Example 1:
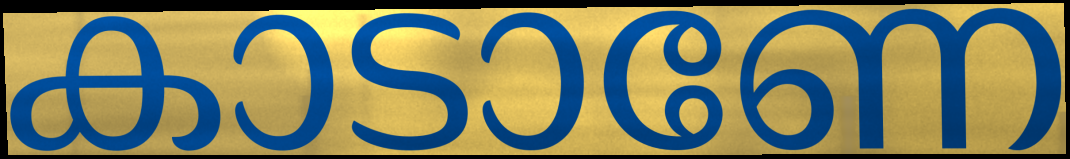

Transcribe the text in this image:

കാടാണേ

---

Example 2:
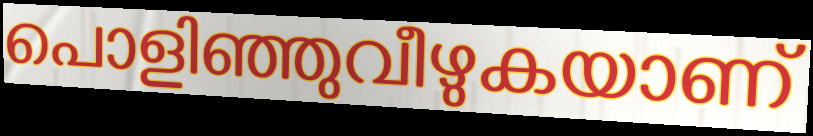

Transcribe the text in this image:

പൊളിഞ്ഞുവീഴുകയാണ്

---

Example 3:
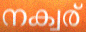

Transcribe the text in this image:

നക്വര്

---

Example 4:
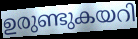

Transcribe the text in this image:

ഉരുണ്ടുകയറി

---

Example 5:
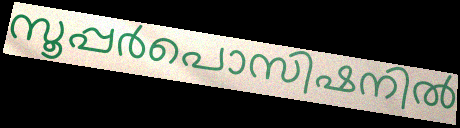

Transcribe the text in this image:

സൂപ്പർപൊസിഷനിൽ